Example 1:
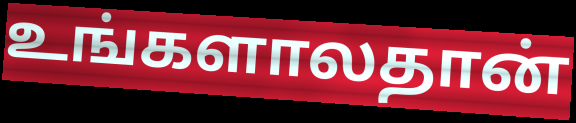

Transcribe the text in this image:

உங்களாலதான்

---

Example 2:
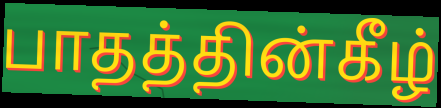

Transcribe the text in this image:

பாதத்தின்கீழ்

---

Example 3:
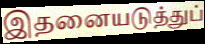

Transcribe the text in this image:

இதனையடுத்துப்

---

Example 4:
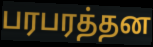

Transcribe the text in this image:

பரபரத்தன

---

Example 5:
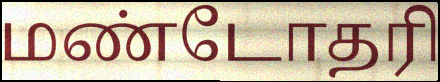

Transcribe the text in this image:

மண்டோதரி